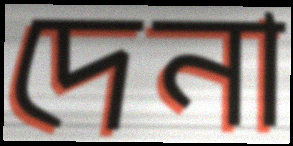
দেনা